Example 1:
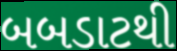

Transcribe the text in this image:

બબડાટથી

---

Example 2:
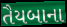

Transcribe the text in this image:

તૈયબાના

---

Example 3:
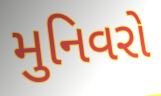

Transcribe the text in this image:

મુનિવરો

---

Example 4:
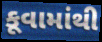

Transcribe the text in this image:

કૂવામાંથી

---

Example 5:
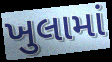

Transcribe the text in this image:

ખુલામાં